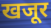
खजूर